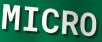
MICRO